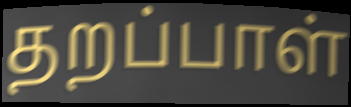
தறப்பாள்